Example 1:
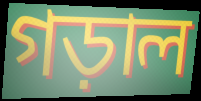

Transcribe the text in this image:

গড়াল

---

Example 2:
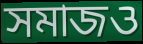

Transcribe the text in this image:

সমাজও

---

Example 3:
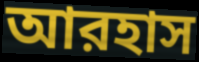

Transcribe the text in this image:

আরহাস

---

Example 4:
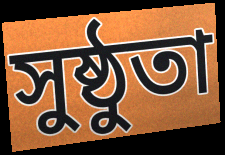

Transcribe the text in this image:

সুষ্ঠুতা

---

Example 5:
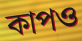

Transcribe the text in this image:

কাপও